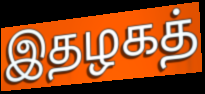
இதழகத்